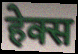
हेक्स